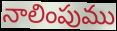
నాలింపుము